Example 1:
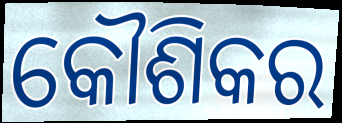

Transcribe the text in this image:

କୌଶିକର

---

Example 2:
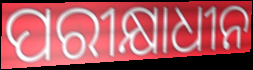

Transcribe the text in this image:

ପରୀକ୍ଷାଧୀନ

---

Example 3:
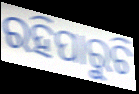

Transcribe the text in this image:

ରହିପାରୁଚି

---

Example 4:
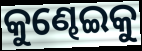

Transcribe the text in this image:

କୁଣ୍ଢେଇକୁ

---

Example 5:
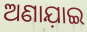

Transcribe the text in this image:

ଅଣାଯ଼ାଇ